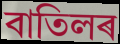
বাতিলৰ